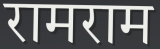
रामराम